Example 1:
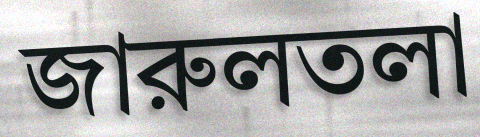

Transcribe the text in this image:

জারুলতলা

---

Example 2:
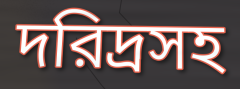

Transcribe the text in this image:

দরিদ্রসহ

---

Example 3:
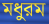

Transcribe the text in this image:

মধুরম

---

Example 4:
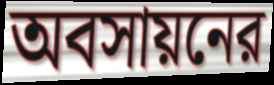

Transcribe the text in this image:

অবসায়নের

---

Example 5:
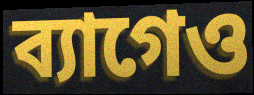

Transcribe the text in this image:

ব্যাগেও